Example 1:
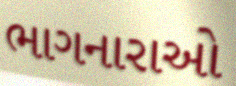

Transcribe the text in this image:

ભાગનારાઓ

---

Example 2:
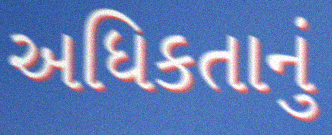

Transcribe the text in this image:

અધિકતાનું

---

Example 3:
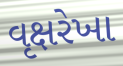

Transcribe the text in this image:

વૃક્ષરેખા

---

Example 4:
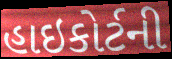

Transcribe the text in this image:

હાઇકોર્ટની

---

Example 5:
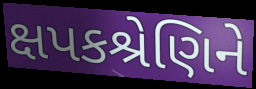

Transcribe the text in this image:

ક્ષપકશ્રેણિને